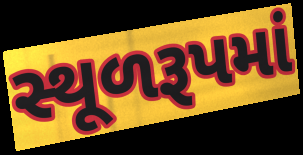
સ્થૂળરૂપમાં